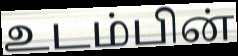
உடம்பின்